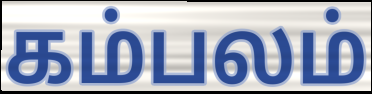
கம்பலம்